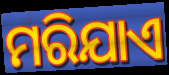
ମରିଯାଏ